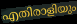
എതിരാളിയും